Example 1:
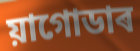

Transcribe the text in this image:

য়াগোডাৰ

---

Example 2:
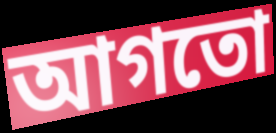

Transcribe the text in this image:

আগতো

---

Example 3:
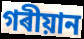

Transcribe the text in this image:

গৰীয়ান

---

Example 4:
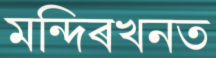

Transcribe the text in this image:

মন্দিৰখনত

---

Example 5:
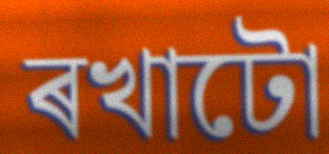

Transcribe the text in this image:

ৰখাটো